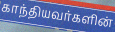
காந்தியவர்களின்